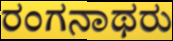
ರಂಗನಾಥರು